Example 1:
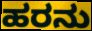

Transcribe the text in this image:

ಹರನು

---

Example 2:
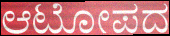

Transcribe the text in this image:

ಆಟೋಪದ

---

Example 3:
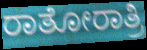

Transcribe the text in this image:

ರಾತೋರಾತ್ರಿ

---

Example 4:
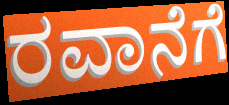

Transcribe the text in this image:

ರವಾನೆಗೆ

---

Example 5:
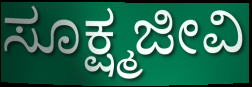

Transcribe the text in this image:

ಸೂಕ್ಷ್ಮಜೀವಿ